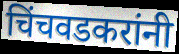
चिंचवडकरांनी